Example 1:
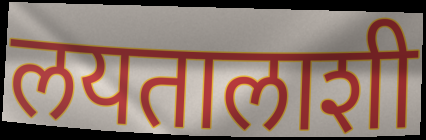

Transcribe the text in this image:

लयतालाशी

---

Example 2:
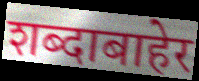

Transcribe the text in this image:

शब्दाबाहेर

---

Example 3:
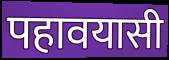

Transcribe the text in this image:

पहावयासी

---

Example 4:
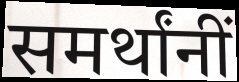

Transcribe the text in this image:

समर्थांनीं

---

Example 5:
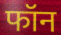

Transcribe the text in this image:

फॉन